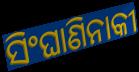
ସିଂଘାଣିନାକୀ